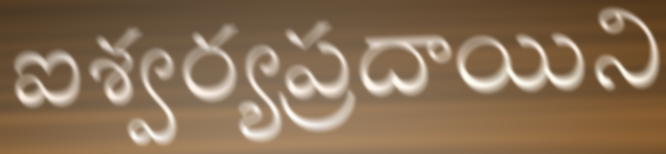
ఐశ్వర్యప్రదాయిని